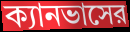
ক্যানভাসের